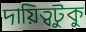
দায়িত্বটুকু